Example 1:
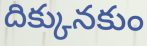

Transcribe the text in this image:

దిక్కునకుం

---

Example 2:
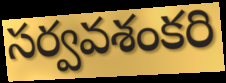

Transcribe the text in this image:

సర్వవశంకరి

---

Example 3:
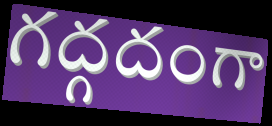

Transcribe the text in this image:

గద్గదంగా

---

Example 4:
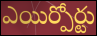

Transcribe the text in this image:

ఎయిర్పోర్టు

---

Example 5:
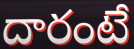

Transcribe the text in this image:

దారంటే